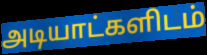
அடியாட்களிடம்